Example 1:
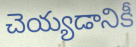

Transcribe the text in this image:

చెయ్యడానికీ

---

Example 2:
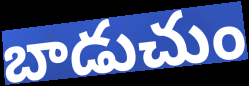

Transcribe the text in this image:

బాడుచుం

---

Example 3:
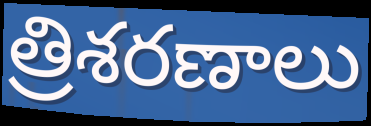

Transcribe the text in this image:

త్రిశరణాలు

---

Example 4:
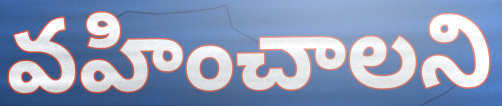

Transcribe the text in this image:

వహించాలని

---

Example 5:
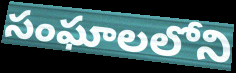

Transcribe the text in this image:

సంఘాలలోని